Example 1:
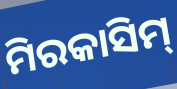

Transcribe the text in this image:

ମିରକାସିମ୍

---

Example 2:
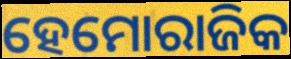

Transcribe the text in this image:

ହେମୋରାଜିକ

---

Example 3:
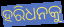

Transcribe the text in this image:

ହରିଧନକୁ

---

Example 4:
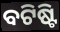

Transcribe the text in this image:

ବଟିଷ୍ଟି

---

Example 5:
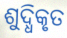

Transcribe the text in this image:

ଶୁଦ୍ଧିକୃତ